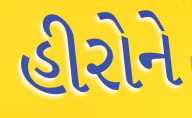
હીરોને